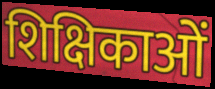
शिक्षिकाओं